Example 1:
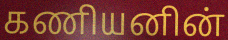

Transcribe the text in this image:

கணியனின்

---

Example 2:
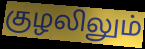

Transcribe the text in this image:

குழலிலும்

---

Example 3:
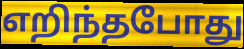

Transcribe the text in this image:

எறிந்தபோது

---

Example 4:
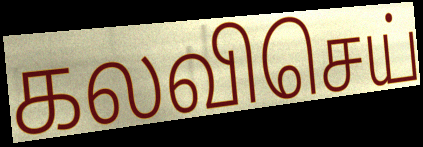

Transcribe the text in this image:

கலவிசெய்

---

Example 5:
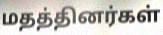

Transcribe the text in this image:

மதத்தினர்கள்